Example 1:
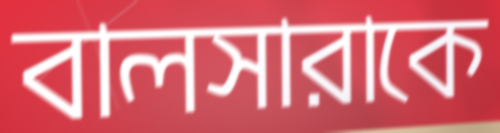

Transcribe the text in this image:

বালসারাকে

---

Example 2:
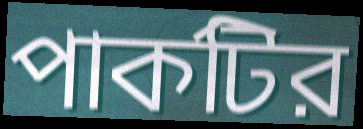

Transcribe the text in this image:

পার্কটির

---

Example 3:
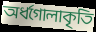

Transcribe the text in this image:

অর্ধগোলাকৃতি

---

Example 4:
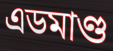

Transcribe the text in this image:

এডমাণ্ড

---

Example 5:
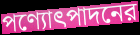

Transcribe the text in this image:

পণ্যোৎপাদনের